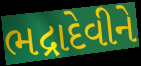
ભદ્રાદેવીને